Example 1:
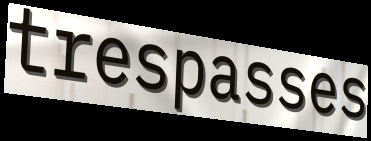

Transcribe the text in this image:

trespasses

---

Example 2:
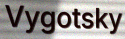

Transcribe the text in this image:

Vygotsky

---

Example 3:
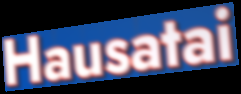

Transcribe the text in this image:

Hausatai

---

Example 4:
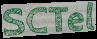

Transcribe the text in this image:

SCTel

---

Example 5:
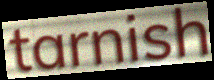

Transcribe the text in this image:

tarnish